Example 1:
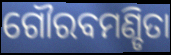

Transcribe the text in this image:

ଗୌରବମଣ୍ଡିତା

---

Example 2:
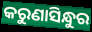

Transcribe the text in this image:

କରୁଣାସିନ୍ଧୁର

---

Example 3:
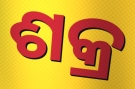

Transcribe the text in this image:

ଶକ୍ର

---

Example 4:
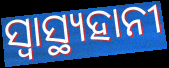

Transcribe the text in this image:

ସ୍ବାସ୍ଥ୍ୟହାନୀ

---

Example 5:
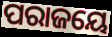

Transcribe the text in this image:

ପରାଜୟେ